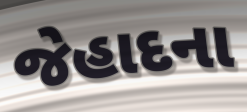
જેહાદના